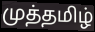
முத்தமிழ்